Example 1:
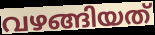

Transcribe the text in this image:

വഴങ്ങിയത്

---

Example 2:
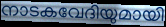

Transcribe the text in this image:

നാടകവേദിയുമായി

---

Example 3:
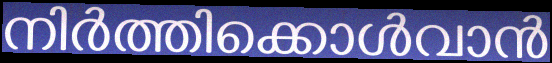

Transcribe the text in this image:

നിർത്തിക്കൊൾവാൻ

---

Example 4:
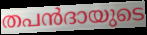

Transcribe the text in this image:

തപൻദായുടെ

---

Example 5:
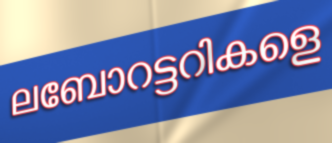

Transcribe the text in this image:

ലബോറട്ടറികളെ